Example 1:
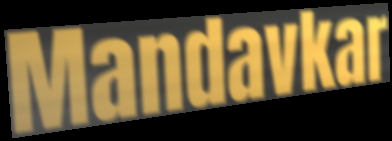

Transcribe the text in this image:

Mandavkar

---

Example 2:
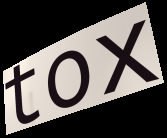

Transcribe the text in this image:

tox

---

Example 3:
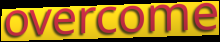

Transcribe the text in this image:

overcome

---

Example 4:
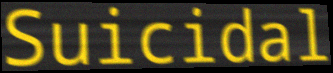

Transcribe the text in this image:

Suicidal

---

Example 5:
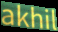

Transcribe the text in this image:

akhil